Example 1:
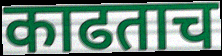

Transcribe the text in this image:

काढताच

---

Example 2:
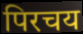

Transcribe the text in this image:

पिरचय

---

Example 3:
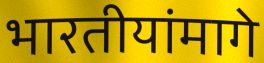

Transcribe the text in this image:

भारतीयांमागे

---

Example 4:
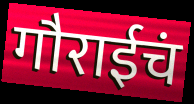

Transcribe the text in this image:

गौराईचं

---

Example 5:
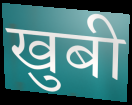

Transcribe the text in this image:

खुबी